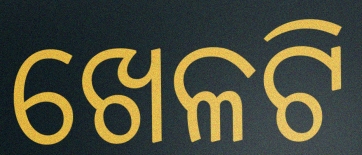
ଖେଳଟି